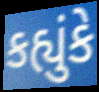
કહ્યુંકે